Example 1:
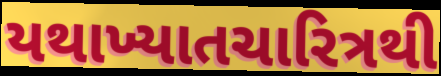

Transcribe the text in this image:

યથાખ્યાતચારિત્રથી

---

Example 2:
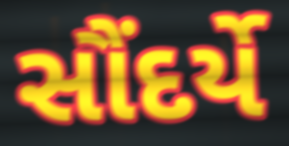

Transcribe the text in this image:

સૌંદર્યે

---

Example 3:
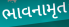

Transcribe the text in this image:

ભાવનામૃત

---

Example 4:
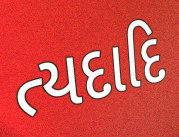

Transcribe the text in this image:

ત્યદાદિ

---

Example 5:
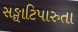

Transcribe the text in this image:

સઙ્ઘાટિપારુતા